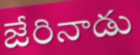
జేరినాడు